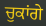
ਚੁਕਾਂਗੇ